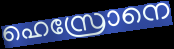
ഹെസ്രോനെ